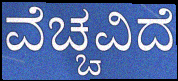
ವೆಚ್ಚವಿದೆ